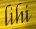
lihi